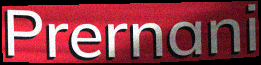
Prernani